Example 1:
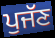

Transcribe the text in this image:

ਪੁਜੱਣ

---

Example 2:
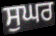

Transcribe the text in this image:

ਸੁਘਰ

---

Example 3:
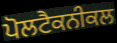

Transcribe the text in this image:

ਪੋਲਟੈਕਨੀਕਲ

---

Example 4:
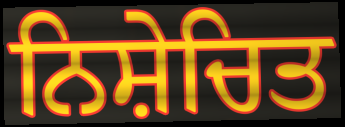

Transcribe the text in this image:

ਨਿਸ਼ੇਚਿਤ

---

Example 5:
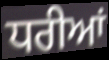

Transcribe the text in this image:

ਧਰੀਆਂ